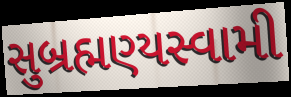
સુબ્રહ્મણ્યસ્વામી